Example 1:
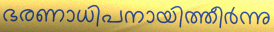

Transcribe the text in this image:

ഭരണാധിപനായിത്തീർന്നു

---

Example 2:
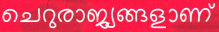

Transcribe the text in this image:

ചെറുരാജ്യങ്ങളാണ്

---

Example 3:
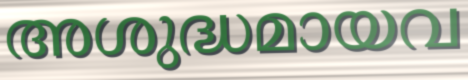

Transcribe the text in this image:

അശുദ്ധമായവ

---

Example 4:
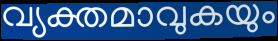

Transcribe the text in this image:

വ്യക്തമാവുകയും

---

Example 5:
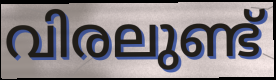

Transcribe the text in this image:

വിരലുണ്ട്